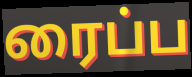
ரைப்ப